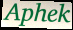
Aphek